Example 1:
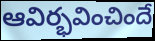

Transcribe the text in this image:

ఆవిర్భవించిందే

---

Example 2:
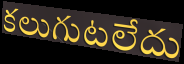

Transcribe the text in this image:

కలుగుటలేదు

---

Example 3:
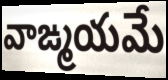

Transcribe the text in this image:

వాఙ్మయమే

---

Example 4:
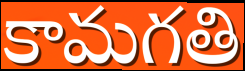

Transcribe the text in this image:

కామగతి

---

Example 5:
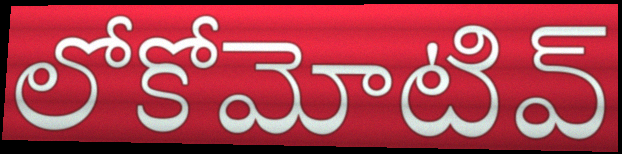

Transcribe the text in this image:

లోకోమోటివ్